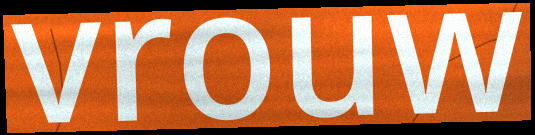
vrouw